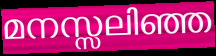
മനസ്സലിഞ്ഞ